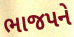
ભાજપને